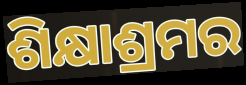
ଶିକ୍ଷାଶ୍ରମର